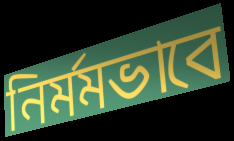
নির্মমভাবে